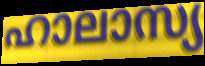
ഹാലാസ്യ